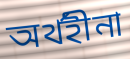
অর্থহীনা